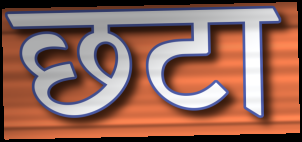
छटा